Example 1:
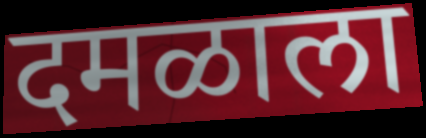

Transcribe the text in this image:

दमळाला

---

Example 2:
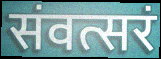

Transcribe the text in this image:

संवत्सरं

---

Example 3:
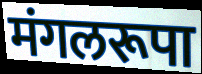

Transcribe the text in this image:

मंगलरूपा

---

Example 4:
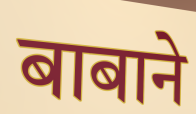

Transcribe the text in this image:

बाबाने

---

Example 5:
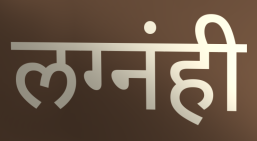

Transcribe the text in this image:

लग्नंही